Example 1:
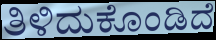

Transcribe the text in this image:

ತಿಳಿದುಕೊಂಡಿದೆ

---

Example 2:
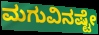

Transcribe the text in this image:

ಮಗುವಿನಷ್ಟೇ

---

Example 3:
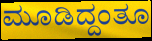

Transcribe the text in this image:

ಮೂಡಿದ್ದಂತೂ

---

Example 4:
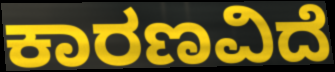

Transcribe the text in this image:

ಕಾರಣವಿದೆ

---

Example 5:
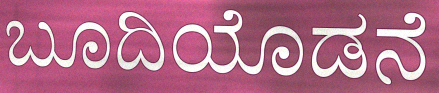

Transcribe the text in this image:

ಬೂದಿಯೊಡನೆ